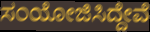
ಸಂಯೋಜಿಸಿದ್ದೇವೆ